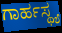
ಗಾರ್ಹಸ್ಥ್ಯ